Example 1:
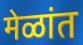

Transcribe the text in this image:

मेळांत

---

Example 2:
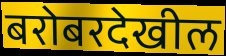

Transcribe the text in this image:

बरोबरदेखील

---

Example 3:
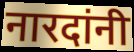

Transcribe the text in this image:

नारदांनी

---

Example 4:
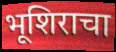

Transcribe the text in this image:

भूशिराचा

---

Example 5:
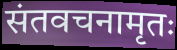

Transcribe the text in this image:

संतवचनामृतः